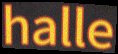
halle